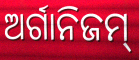
ଅର୍ଗାନିଜମ୍